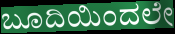
ಬೂದಿಯಿಂದಲೇ